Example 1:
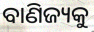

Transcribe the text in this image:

ବାଣିଜ୍ୟକୁ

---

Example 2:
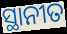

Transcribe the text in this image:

ସ୍ଥାନୀତ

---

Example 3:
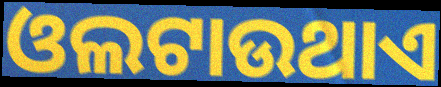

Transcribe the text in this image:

ଓଲଟାଉଥାଏ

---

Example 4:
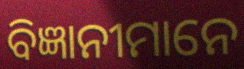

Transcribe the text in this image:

ବିଜ୍ଞାନୀମାନେ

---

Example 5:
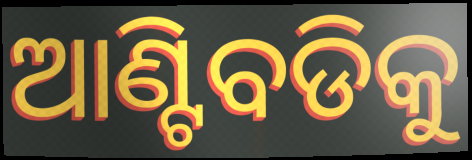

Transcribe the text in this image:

ଆଣ୍ଟିବଡିକୁ